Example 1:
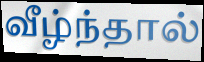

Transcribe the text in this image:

வீழ்ந்தால்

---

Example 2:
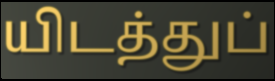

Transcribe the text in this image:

யிடத்துப்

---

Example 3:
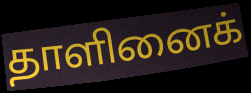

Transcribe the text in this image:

தாளினைக்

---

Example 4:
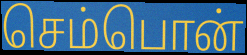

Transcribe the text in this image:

செம்பொன்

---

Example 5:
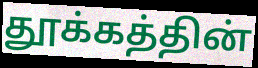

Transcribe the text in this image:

தூக்கத்தின்